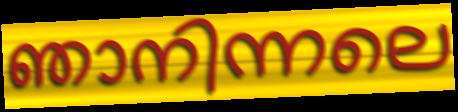
ഞാനിന്നലെ